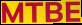
MTBE